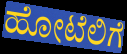
ಹೋಟೆಲಿಗೆ